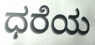
ಧರೆಯ